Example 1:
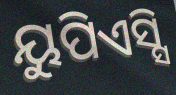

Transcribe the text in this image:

ୟୁପିଏସ୍ସି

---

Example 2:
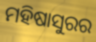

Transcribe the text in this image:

ମହିଷାସୁରର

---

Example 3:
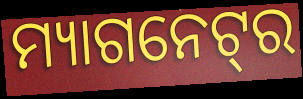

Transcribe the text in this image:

ମ୍ୟାଗନେଟ୍‌ର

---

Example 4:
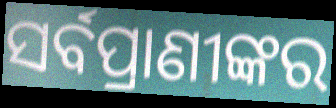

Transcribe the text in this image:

ସର୍ବପ୍ରାଣୀଙ୍କର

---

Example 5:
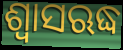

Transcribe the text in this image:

ଶ୍ୱାସଋଦ୍ଧ